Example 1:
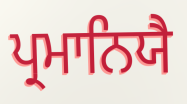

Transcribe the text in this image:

ਪ੍ਰਮਾਨਿਯੈ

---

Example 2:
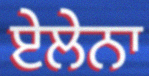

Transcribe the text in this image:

ਏਲੇਨਾ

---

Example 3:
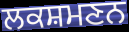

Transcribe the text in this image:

ਲਕਸ਼ਮਣਨ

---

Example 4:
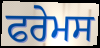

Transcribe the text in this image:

ਫਰੇਮਸ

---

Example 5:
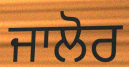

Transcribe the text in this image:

ਜਾਲੋਰ